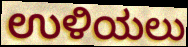
ಉಳಿಯಲು